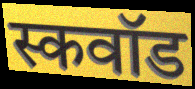
स्कवॉड